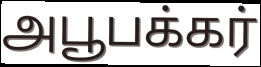
அபூபக்கர்